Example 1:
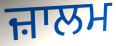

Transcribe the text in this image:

ਜ਼ਾਲਮ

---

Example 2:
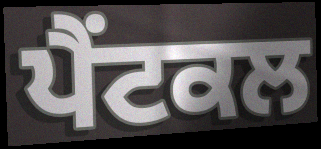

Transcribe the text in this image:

ਪੈਂਟਕਲ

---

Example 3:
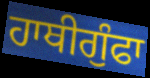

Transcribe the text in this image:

ਹਾਥੀਗੁੰਫਾ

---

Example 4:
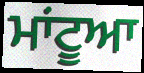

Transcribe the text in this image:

ਮਾਂਟੂਆ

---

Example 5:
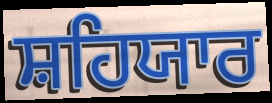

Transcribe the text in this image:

ਸ਼ਹਿਯਾਰ